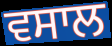
ਵਸਾਲ